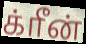
க்ரீன்